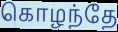
கொழந்தே